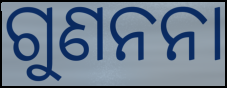
ଗୁଣନନା